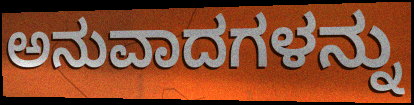
ಅನುವಾದಗಳನ್ನು